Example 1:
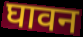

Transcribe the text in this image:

घावन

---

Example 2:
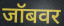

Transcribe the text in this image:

जॉबवर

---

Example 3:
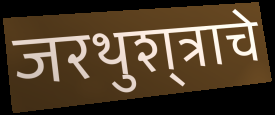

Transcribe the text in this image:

जरथुश्त्राचे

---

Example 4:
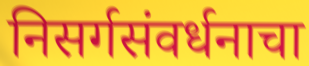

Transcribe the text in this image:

निसर्गसंवर्धनाचा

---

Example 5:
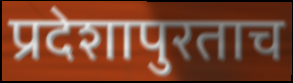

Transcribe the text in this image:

प्रदेशापुरताच